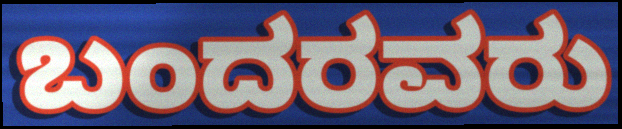
ಬಂದರವರು